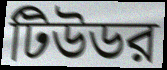
টিউডর